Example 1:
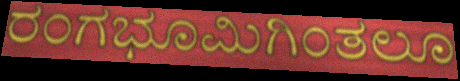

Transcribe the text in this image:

ರಂಗಭೂಮಿಗಿಂತಲೂ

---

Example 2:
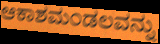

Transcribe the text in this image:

ಆಕಾಶಮಂಡಲವನ್ನು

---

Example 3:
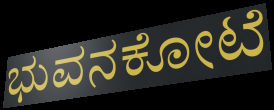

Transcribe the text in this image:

ಭುವನಕೋಟೆ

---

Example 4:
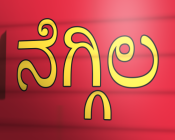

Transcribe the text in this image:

ನೆಗ್ಗಿಲ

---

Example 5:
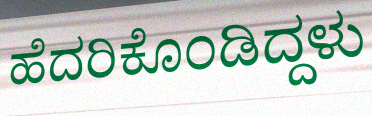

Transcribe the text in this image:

ಹೆದರಿಕೊಂಡಿದ್ದಳು